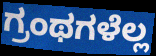
ಗ್ರಂಥಗಳೆಲ್ಲ